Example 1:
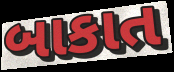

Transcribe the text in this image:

બાકાત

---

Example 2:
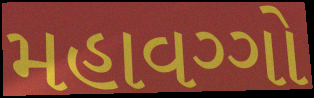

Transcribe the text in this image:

મહાવગ્ગો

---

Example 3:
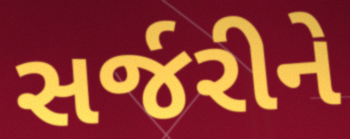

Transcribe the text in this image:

સર્જરીને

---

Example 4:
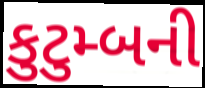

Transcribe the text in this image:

કુટુમ્બની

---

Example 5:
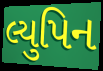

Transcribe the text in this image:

લ્યુપિન